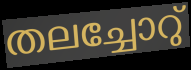
തലച്ചോറു്